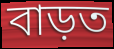
বাড়ত